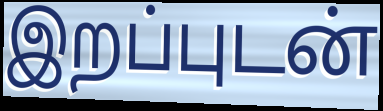
இறப்புடன்